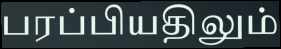
பரப்பியதிலும்